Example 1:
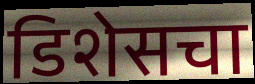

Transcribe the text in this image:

डिशेसचा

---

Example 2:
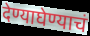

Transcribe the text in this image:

देण्याघेण्याचं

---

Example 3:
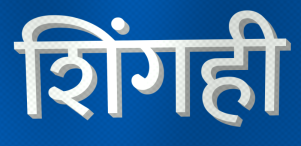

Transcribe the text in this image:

शिंगही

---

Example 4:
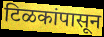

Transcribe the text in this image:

टिळकांपासून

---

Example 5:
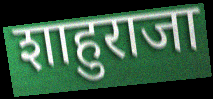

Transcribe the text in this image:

शाहुराजा